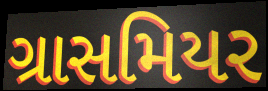
ગ્રાસમિયર